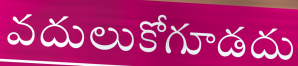
వదులుకోగూడదు